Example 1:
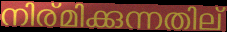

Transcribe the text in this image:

നിര്മിക്കുന്നതില്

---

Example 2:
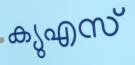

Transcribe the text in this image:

ക്യുഎസ്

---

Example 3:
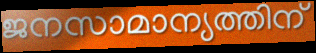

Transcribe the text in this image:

ജനസാമാന്യത്തിന്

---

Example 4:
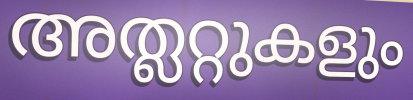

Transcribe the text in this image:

അത്ലറ്റുകളും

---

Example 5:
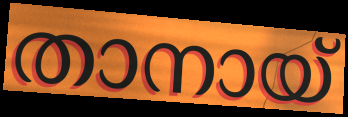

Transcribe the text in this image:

താനായ്